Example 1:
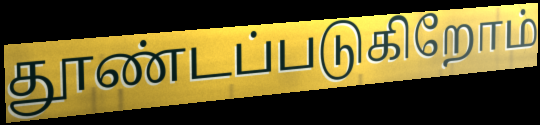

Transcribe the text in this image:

தூண்டப்படுகிறோம்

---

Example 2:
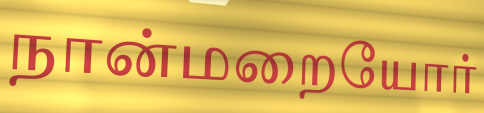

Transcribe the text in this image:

நான்மறையோர்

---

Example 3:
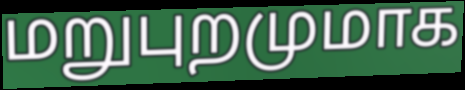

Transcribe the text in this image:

மறுபுறமுமாக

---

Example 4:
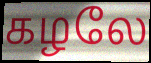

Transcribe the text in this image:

கழலே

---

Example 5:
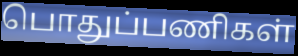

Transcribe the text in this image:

பொதுப்பணிகள்